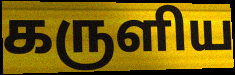
கருளிய